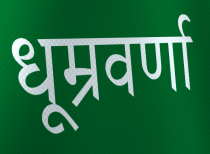
धूम्रवर्णा